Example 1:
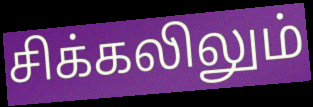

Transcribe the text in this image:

சிக்கலிலும்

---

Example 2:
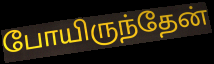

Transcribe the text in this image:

போயிருந்தேன்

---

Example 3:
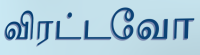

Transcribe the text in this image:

விரட்டவோ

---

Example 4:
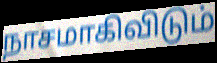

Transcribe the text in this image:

நாசமாகிவிடும்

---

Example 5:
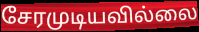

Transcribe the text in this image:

சேரமுடியவில்லை